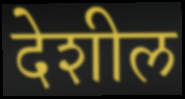
देशील